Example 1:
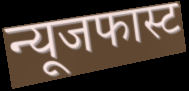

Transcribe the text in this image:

न्यूजफास्ट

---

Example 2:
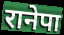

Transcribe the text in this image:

रानेपा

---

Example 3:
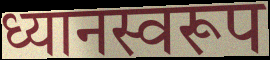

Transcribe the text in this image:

ध्यानस्वरूप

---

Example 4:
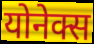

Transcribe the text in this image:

योनेक्स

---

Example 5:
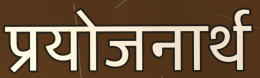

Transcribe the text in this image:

प्रयोजनार्थ